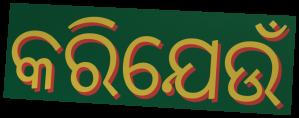
କରିଯେଉଁ